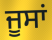
ਜੂਸਾਂ